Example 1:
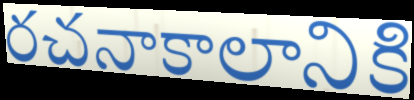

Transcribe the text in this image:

రచనాకాలానికి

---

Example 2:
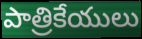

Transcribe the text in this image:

పాత్రికేయులు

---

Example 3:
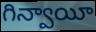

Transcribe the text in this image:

గిన్వాయీ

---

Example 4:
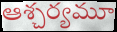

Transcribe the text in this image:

ఆశ్చర్యమూ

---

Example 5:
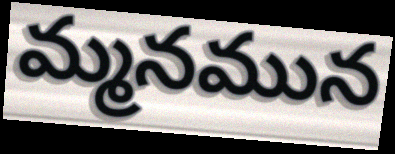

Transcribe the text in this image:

మ్మనమున